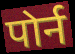
पोर्न